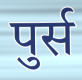
पुर्स